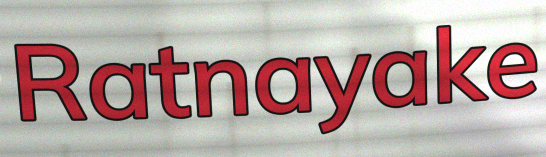
Ratnayake